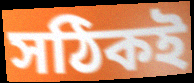
সঠিকই